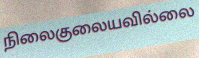
நிலைகுலையவில்லை